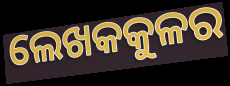
ଲେଖକକୁଳର